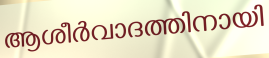
ആശീർവാദത്തിനായി